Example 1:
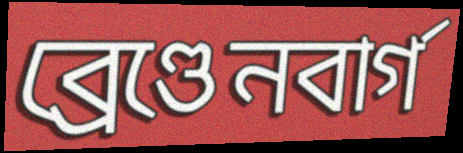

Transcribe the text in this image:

ব্ৰেণ্ডেনবাৰ্গ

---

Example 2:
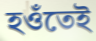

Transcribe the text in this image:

হওঁতেই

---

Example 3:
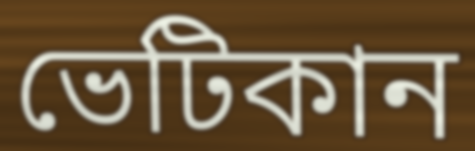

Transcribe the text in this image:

ভেটিকান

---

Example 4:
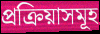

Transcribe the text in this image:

প্ৰক্ৰিয়াসমূহ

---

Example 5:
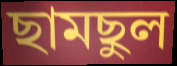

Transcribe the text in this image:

ছামছুল